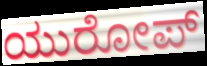
ಯುರೋಪ್